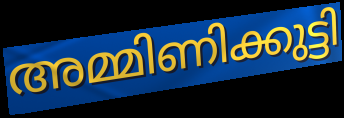
അമ്മിണിക്കുട്ടി